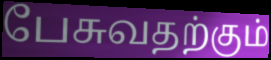
பேசுவதற்கும்